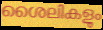
ശൈലികളും